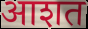
आशत